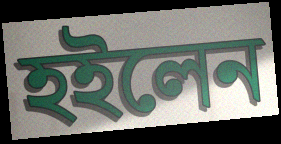
হইলেন